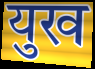
युख